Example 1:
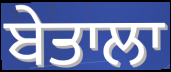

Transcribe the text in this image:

ਬੇਤਾਲਾ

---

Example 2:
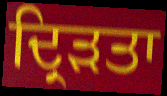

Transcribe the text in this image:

ਦ੍ਰਿੜਤਾ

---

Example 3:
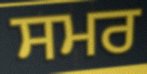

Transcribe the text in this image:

ਸਮਰ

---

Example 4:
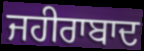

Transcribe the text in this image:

ਜਹੀਰਾਬਾਦ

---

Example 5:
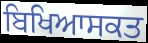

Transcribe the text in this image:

ਬਿਖਿਆਸਕਤ